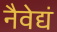
नैवेद्यं